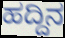
ಹದ್ದಿನ